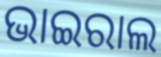
ଭାଇରାଲ